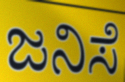
ಜನಿಸೆ